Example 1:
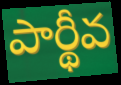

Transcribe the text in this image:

పార్థీవ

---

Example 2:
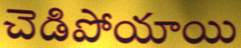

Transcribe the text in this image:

చెడిపోయాయి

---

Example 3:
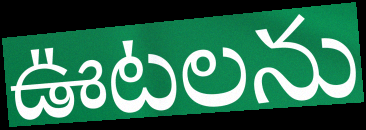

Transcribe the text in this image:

ఊటలను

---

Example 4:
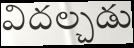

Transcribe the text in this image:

విదల్చడు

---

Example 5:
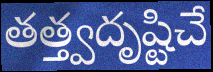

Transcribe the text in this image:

తత్త్వదృష్టిచే